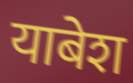
याबेश